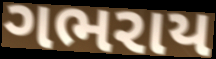
ગભરાય